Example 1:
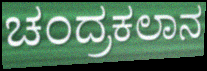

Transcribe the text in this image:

ಚಂದ್ರಕಲಾನ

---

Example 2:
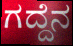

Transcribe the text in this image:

ಗದ್ದೆನ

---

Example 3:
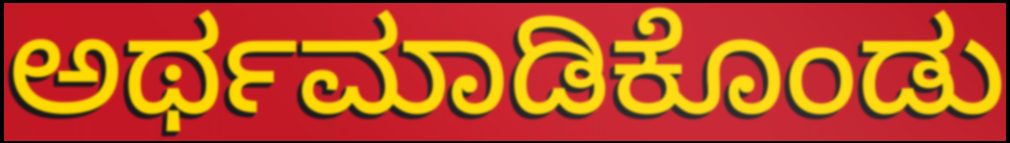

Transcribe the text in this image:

ಅರ್ಥಮಾಡಿಕೊಂಡು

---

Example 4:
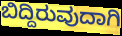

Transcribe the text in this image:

ಬಿದ್ದಿರುವುದಾಗಿ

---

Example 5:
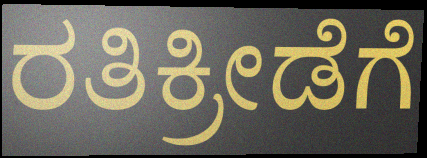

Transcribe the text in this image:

ರತಿಕ್ರೀಡೆಗೆ